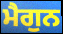
ਮੈਗੁਨ